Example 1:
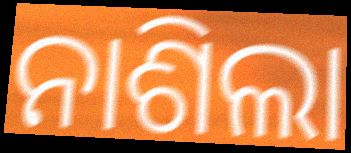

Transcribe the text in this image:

ନାଶିଲା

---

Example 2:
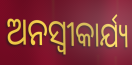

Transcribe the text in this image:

ଅନସ୍ବୀକାର୍ଯ୍ୟ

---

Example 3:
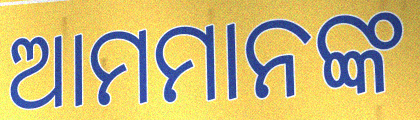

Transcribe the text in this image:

ଆମମାନଙ୍କ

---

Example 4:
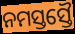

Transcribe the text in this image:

ନମସ୍ତସ୍ତୈ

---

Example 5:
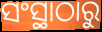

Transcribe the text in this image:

ସଂସ୍ଥାଠାରୁ